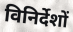
विनिर्देशों